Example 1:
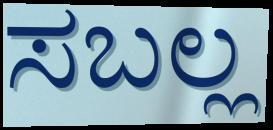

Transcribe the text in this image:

ಸಬಲ್ಲ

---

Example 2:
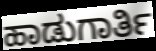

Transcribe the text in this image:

ಹಾಡುಗಾರ್ತಿ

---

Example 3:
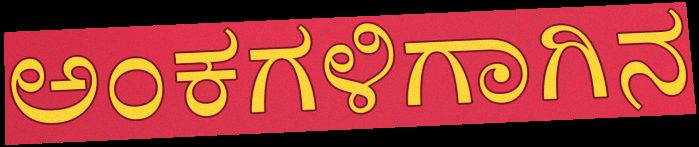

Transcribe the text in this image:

ಅಂಕಗಳಿಗಾಗಿನ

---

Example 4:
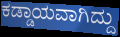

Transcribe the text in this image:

ಕಡ್ಡಾಯವಾಗಿದ್ದು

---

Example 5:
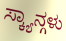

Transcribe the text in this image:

ಸ್ಕ್ಯಾನ್ಗಳು